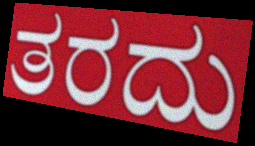
ತರದು